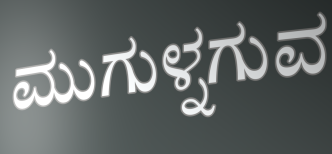
ಮುಗುಳ್ನಗುವ